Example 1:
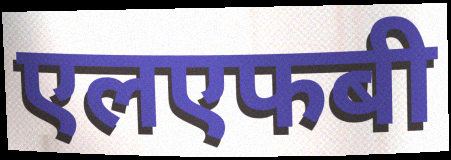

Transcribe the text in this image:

एलएफबी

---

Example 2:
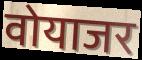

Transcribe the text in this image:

वोयाजर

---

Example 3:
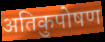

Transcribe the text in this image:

अतिकुपोषण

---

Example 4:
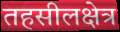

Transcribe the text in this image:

तहसीलक्षेत्र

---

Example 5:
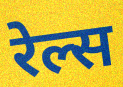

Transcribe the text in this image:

रेल्स